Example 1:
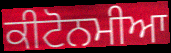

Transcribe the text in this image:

ਕੀਟੋਨਮੀਆ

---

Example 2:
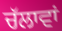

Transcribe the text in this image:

ਚੱਲਾਵਾਂ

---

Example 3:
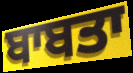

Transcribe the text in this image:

ਬਾਬਤਾ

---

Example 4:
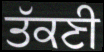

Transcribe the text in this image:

ਤੱਕਣੀ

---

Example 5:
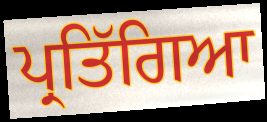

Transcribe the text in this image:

ਪ੍ਰਤਿੱਗਿਆ